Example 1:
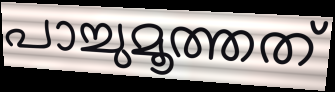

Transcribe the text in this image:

പാച്ചുമൂത്തത്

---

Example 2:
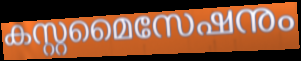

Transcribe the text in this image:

കസ്റ്റമൈസേഷനും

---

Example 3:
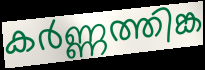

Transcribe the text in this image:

കർണ്ണത്തിങ്ക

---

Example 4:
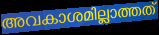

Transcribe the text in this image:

അവകാശമില്ലാത്തത്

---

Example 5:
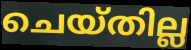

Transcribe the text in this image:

ചെയ്തില്ല